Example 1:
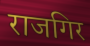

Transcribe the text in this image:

राजगिर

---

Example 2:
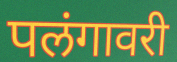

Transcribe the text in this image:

पलंगावरी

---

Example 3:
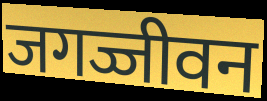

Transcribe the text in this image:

जगज्जीवन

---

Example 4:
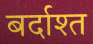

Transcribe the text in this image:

बर्दाश्त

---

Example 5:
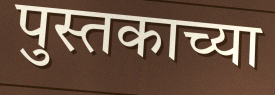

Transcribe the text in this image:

पुस्तकाच्या